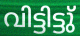
വിട്ടിട്ടു്